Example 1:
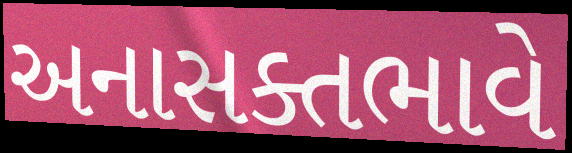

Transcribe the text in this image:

અનાસક્તભાવે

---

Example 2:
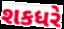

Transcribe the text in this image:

શકધરે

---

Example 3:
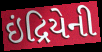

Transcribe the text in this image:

ઇંદ્રિયેની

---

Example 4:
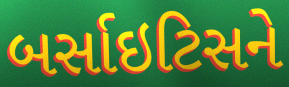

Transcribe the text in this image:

બર્સાઇટિસને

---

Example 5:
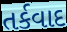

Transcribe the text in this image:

તર્કવાદ